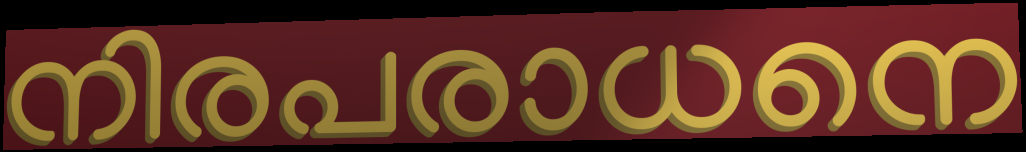
നിരപരാധനെ